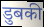
डुबकी